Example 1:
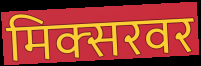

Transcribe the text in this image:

मिक्‍सरवर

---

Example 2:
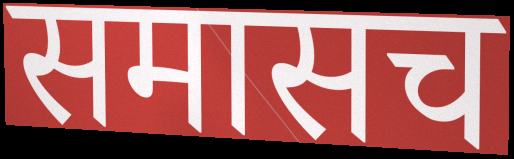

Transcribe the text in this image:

समासच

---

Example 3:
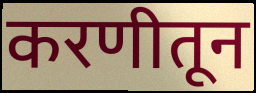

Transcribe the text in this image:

करणीतून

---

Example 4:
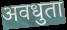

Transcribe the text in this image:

अवधुता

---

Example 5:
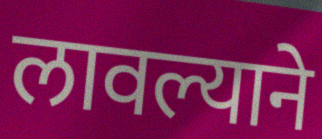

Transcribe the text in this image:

लावल्याने